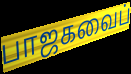
பாஜகவைப்